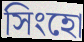
সিংহো